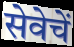
सेवेचें